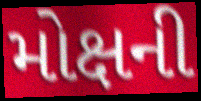
મોક્ષની